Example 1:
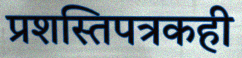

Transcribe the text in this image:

प्रशस्तिपत्रकही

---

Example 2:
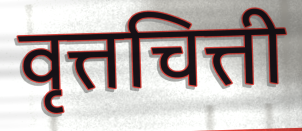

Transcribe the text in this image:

वृत्तचित्ती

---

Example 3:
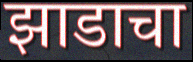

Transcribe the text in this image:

झाडाचा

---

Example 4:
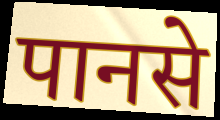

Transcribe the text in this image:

पानसे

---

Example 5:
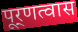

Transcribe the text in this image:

पूर्णत्वास